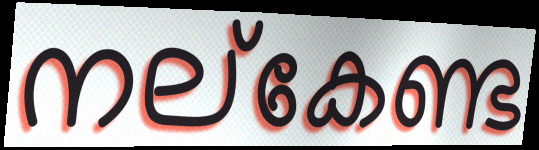
നല്കേണ്ട